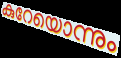
കുറേയൊന്നും